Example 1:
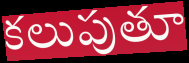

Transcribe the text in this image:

కలుపుతూ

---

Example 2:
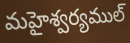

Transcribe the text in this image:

మహైశ్వర్యముల్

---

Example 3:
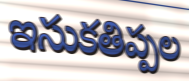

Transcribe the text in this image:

ఇసుకతిప్పల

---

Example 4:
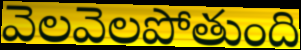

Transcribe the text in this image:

వెలవెలపోతుంది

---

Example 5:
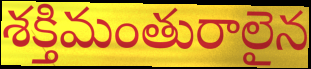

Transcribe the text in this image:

శక్తిమంతురాలైన